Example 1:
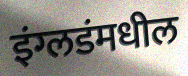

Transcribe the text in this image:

इंग्लडंमधील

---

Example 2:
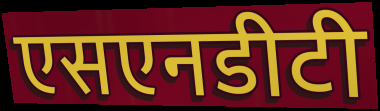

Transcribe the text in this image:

एसएनडीटी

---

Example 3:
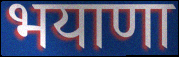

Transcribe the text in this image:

भयाणा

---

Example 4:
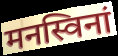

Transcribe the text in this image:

मनस्विनां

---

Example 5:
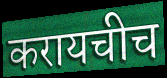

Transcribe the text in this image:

करायचीच